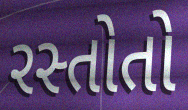
રસ્તોતો